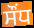
ਸੌਂਧ